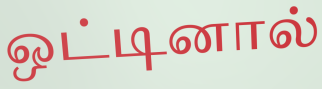
ஒட்டினால்